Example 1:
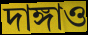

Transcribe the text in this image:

দাঙ্গাও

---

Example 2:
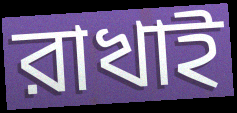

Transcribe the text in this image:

রাখাই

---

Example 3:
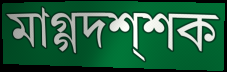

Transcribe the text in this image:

মাগ্গদশ্শক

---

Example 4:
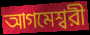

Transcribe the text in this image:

আগমেশ্বরী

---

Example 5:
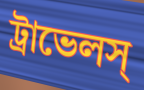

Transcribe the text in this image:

ট্রাভেলস্